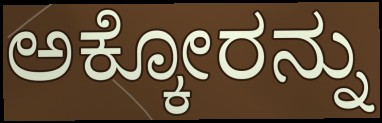
ಅಕ್ಕೋರನ್ನು